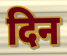
दिन